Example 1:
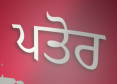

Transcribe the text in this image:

ਪਤੋਰ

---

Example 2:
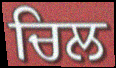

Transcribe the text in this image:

ਚਿਲ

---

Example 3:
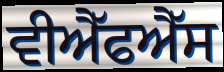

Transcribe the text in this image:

ਵੀਐੱਫਐੱਸ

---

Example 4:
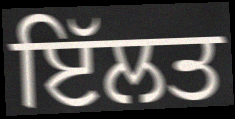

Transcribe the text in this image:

ਇੱਲਤ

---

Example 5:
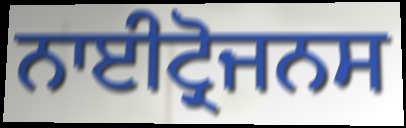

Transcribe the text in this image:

ਨਾਈਟ੍ਰੋਜਨਸ